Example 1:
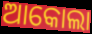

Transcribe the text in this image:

ଆକୋଲା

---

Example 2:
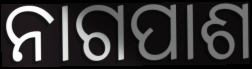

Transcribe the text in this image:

ନାଗପାଶ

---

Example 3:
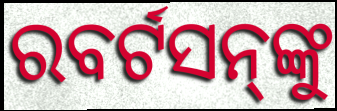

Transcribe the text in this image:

ରବର୍ଟସନ୍‌ଙ୍କୁ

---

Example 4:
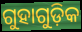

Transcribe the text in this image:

ଗୁହାଗୁଡ଼ିକ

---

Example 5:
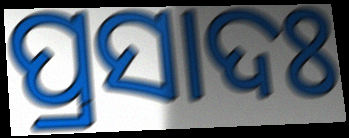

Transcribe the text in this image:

ପ୍ରସାଦଃ